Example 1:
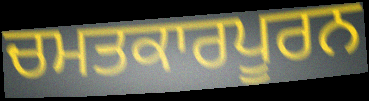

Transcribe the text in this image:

ਚਮਤਕਾਰਪੂਰਨ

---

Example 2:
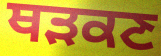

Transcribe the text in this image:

ਥੜਕਣ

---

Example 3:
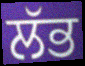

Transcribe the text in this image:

ਲੱਭ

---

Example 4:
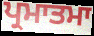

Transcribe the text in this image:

ਪ੍ਰਮਾਤਮਾ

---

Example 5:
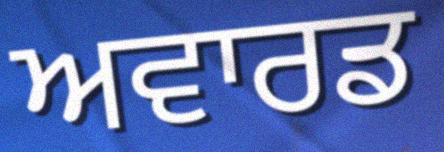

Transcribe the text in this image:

ਅਵਾਰਡ